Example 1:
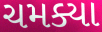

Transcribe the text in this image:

ચમક્યા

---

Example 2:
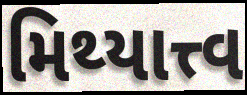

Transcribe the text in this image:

મિથ્યાત્ત્વ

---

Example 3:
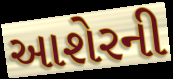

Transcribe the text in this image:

આશેરની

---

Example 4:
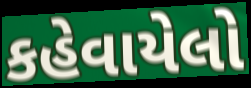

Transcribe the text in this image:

કહેવાયેલો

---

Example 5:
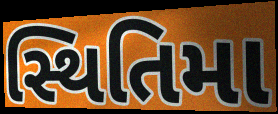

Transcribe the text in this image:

સ્થિતિમા